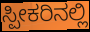
ಸ್ಪೀಕರಿನಲ್ಲಿ